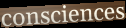
consciences